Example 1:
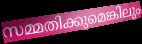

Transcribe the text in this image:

സമ്മതിക്കുമെങ്കിലും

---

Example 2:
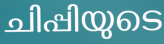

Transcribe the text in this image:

ചിപ്പിയുടെ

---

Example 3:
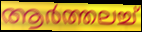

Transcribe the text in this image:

ആർത്തലച്ച്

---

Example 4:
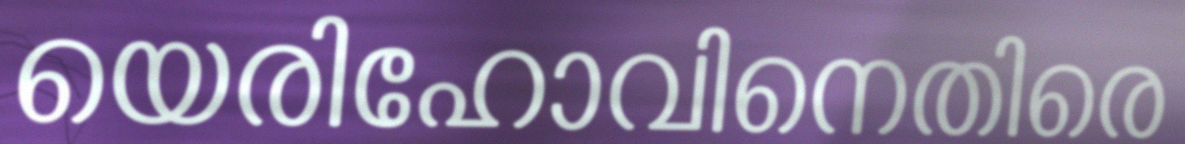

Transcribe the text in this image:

യെരിഹോവിനെതിരെ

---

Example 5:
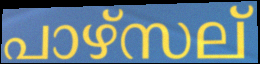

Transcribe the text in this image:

പാഴ്സല്